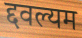
द्दवल्यम